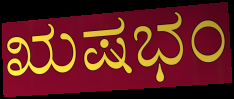
ಋಷಭಂ